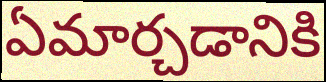
ఏమార్చడానికి